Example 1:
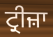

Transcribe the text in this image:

ਟ੍ਰੀਜ਼ਾ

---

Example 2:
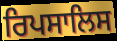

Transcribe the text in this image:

ਰਿਪਸਾਲਿਸ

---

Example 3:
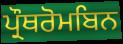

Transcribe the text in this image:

ਪ੍ਰੌਥਰੋਮਬਿਨ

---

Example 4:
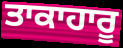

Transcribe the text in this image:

ਤਾਕਾਹਾਰੂ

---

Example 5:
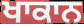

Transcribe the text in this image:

ਖਾਕਾਨ